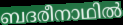
ബദരീനാഥിൽ